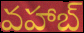
వహాబ్